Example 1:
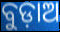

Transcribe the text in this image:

ବୁଡ଼ାଅ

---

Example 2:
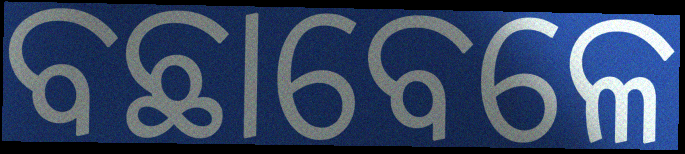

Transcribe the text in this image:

ବଛାବେଳେ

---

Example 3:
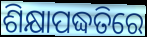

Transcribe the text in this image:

ଶିକ୍ଷାପଦ୍ଧତିରେ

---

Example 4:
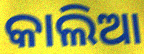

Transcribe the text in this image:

କାଲିଆ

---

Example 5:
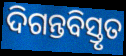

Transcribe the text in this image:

ଦିଗନ୍ତବିସ୍ତୃତ